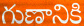
గుణానికి